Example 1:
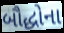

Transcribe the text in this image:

બૌદ્ધોના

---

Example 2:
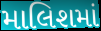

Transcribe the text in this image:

માલિશમાં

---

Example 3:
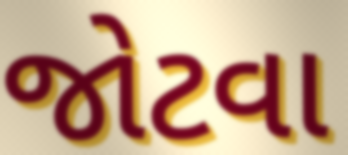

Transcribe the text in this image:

જોટવા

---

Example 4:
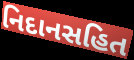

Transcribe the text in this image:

નિદાનસહિત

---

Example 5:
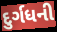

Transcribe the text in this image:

દુર્ગધની